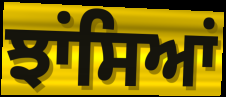
ਝਾਂਸਿਆਂ